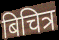
बिचित्र